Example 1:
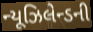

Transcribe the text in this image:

ન્યૂઝિલેન્ડની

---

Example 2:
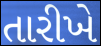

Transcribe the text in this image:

તારીખે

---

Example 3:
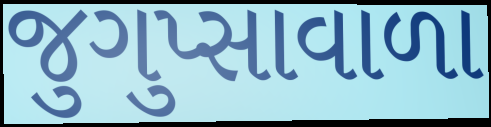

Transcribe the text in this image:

જુગુપ્સાવાળા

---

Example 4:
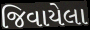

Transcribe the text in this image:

જિવાયેલા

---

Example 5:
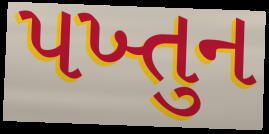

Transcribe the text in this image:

પખ્તુન